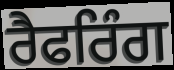
ਰੈਫਰਿੰਗ